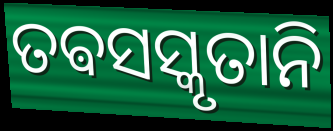
ତଵସସ୍କୃତାନି